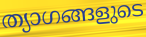
ത്യാഗങ്ങളുടെ